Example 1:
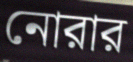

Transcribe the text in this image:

নোরার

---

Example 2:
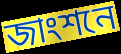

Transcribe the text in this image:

জাংশনে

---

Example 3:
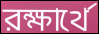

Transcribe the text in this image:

রক্ষার্থে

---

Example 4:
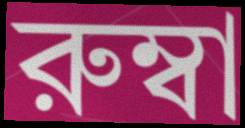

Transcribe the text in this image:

রুম্বা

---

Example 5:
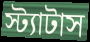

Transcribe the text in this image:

স্ট্যাটাস